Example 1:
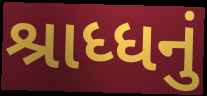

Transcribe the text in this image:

શ્રાધ્ધનું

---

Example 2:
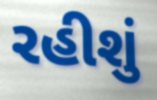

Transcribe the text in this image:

રહીશું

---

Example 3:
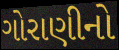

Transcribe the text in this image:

ગોરાણીનો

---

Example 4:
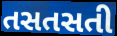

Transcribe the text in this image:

તસતસતી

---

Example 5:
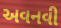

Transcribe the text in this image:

અવનવી